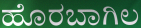
ಹೊರಬಾಗಿಲ